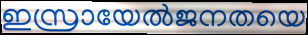
ഇസ്രായേൽജനതയെ